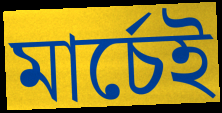
মার্চেই